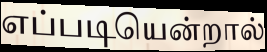
எப்படியென்றால்